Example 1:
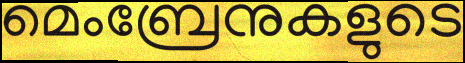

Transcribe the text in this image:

മെംബ്രേനുകളുടെ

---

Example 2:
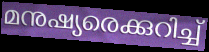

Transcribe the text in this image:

മനുഷ്യരെക്കുറിച്ച്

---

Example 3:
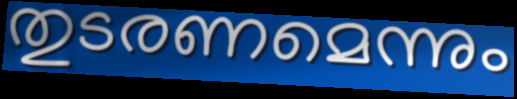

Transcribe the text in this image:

തുടരണമെന്നും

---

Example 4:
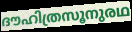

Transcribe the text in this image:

ദൗഹിത്രസൂനുരഥ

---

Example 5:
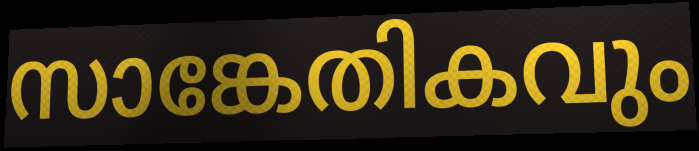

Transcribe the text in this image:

സാങ്കേതികവും